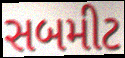
સબમીટ